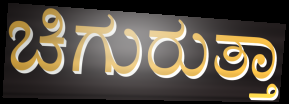
ಚಿಗುರುತ್ತಾ